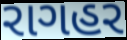
રાગહર